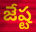
జేష్ట